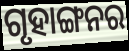
ଗୃହାଙ୍ଗନର